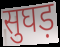
सुघड़